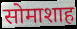
सोमाशाह